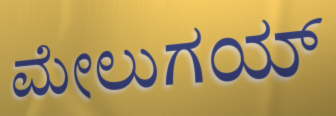
ಮೇಲುಗಯ್